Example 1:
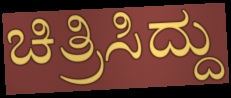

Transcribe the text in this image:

ಚಿತ್ರಿಸಿದ್ದು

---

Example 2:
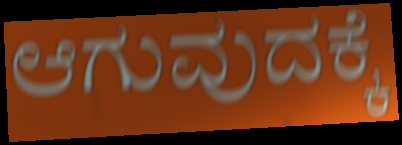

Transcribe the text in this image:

ಆಗುವುದಕ್ಕೆ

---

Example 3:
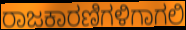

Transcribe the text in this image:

ರಾಜಕಾರಣಿಗಳಿಗಾಗಲಿ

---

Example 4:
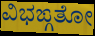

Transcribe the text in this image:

ವಿಭಙ್ಗತೋ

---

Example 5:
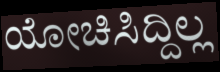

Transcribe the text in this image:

ಯೋಚಿಸಿದ್ದಿಲ್ಲ